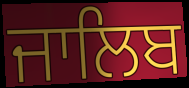
ਜਾਲਿਬ